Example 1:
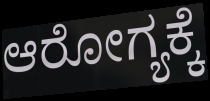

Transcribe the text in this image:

ಆರೋಗ್ಯಕ್ಕೆ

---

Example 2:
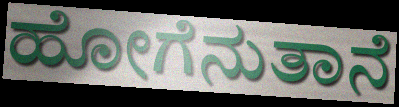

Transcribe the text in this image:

ಹೋಗೆನುತಾನೆ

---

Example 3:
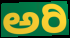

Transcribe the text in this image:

ಅರಿ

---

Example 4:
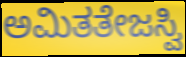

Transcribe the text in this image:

ಅಮಿತತೇಜಸ್ವಿ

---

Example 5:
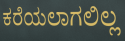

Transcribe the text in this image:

ಕರೆಯಲಾಗಲಿಲ್ಲ